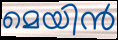
മെയിൻ